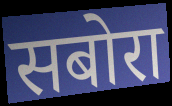
सबोरा